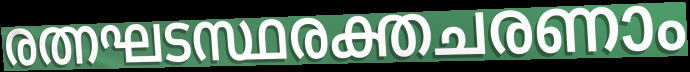
രത്നഘടസ്ഥരക്തചരണാം